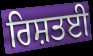
ਰਿਸ਼ਤਈ